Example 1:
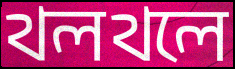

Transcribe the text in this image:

থলথলে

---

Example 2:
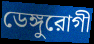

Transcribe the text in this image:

ডেঙ্গুরোগী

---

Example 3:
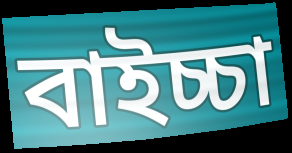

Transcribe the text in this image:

বাইচ্চা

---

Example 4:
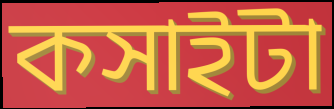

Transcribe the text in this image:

কসাইটা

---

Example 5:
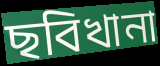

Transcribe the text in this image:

ছবিখানা